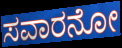
ಸವಾರನೋ